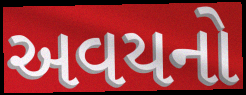
અવયનો